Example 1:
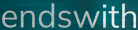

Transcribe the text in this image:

endswith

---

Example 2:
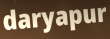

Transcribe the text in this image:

daryapur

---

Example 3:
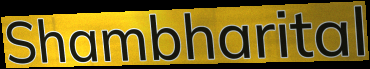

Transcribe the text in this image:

Shambharital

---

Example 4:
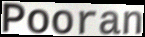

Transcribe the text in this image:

Pooran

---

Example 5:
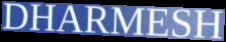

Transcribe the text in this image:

DHARMESH